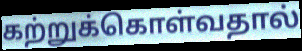
கற்றுக்கொள்வதால்